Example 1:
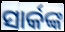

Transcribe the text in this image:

ସାର୍କଙ୍କ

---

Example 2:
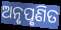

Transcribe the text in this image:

ଅନୃପୃଣିତ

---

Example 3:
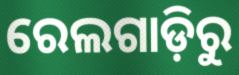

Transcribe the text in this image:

ରେଲଗାଡ଼ିରୁ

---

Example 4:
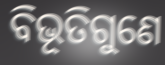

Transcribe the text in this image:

ବିଭୂତିଗୁଣେ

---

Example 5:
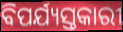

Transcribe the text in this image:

ବିପର୍ଯ୍ୟସ୍ତକାରୀ